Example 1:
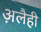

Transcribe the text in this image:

अ़लैही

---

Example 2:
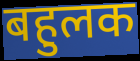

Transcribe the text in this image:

बहुलक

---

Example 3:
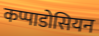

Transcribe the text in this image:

कप्पाडोसियन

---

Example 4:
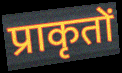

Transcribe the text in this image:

प्राकृतों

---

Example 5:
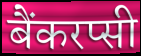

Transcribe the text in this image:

बैंकरप्सी